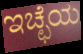
ಇಚ್ಛೆಯ